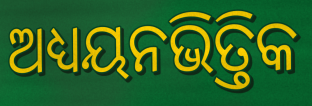
ଅଧ୍ୟୟନଭିତ୍ତିକ